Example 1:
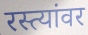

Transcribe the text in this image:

रस्त्यांवर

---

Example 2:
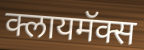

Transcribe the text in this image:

क्लायमॅक्स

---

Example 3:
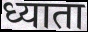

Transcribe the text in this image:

ध्याता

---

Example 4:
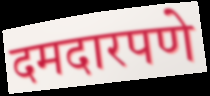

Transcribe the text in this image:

दमदारपणे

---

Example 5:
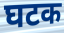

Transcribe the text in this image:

घटक